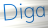
Diga